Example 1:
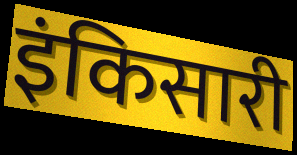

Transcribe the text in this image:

इंकिसारी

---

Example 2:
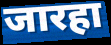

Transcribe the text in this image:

जारहा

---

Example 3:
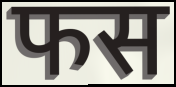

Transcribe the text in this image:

फस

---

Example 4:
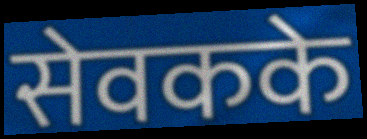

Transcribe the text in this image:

सेवकके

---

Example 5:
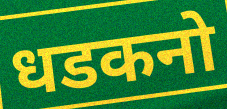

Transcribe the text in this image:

धडकनो